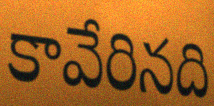
కావేరినది